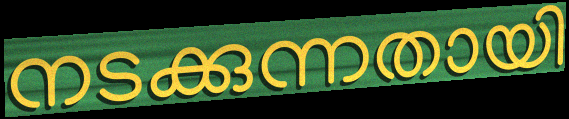
നടക്കുന്നതായി